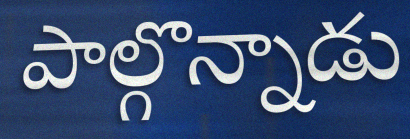
పాల్గొన్నాడు